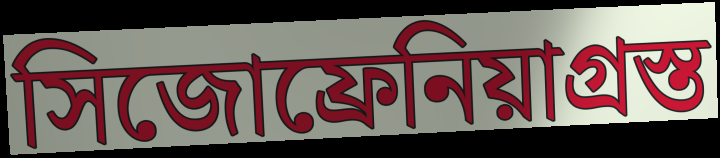
সিজোফ্রেনিয়াগ্রস্ত